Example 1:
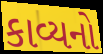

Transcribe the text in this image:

કાવ્યનો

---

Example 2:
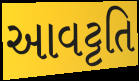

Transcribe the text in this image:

આવટ્ટતિ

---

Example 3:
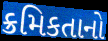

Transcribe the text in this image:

ક્રમિકતાનો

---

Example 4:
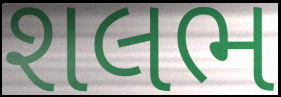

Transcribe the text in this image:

શલભ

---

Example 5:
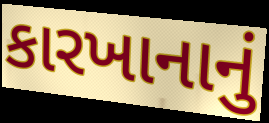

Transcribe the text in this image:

કારખાનાનું